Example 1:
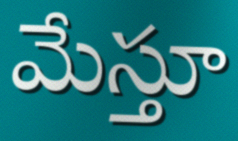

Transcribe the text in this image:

మేస్తూ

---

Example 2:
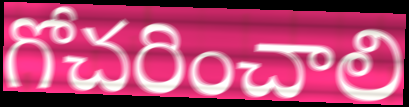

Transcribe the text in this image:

గోచరించాలి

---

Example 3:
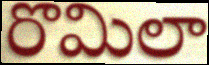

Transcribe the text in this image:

రొమిలా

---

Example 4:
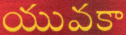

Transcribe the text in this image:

యువకా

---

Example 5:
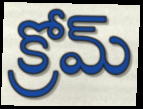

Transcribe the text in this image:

క్రోమ్